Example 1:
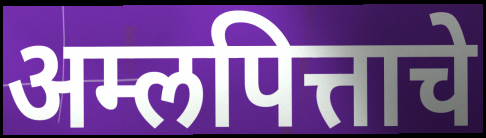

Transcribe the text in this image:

अम्लपित्ताचे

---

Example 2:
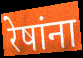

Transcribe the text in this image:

रेषांना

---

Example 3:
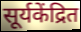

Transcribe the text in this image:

सूर्यकेंद्रित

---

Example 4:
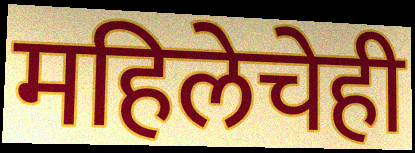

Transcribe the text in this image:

महिलेचेही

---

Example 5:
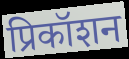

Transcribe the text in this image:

प्रिकॉशन